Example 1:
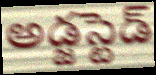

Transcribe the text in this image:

అడ్జస్టెడ్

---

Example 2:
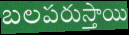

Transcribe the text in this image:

బలపరుస్తాయి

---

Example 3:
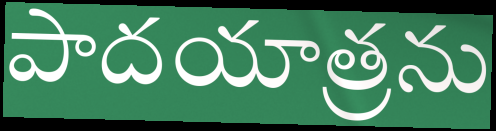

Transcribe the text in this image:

పాదయాత్రను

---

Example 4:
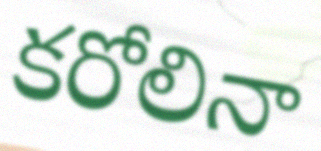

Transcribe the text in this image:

కరోలినా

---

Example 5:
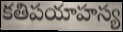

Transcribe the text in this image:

కతిపయాహస్య